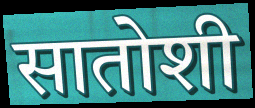
सातोशी